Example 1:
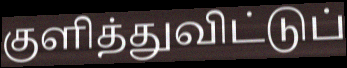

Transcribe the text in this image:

குளித்துவிட்டுப்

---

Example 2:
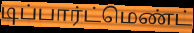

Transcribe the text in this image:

டிப்பார்ட்மெண்ட்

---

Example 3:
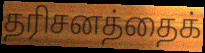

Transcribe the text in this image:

தரிசனத்தைக்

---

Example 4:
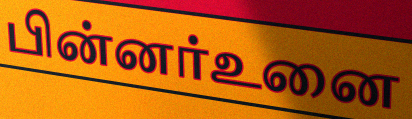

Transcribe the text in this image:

பின்னர்உனை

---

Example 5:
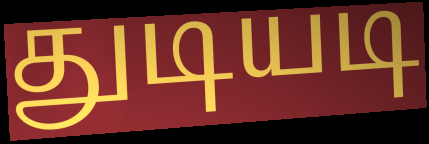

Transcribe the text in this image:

துடியடி